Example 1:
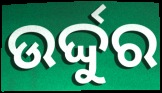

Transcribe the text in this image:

ଉର୍ଦ୍ଦୁର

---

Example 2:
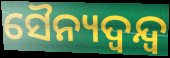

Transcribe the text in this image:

ସୈନ୍ୟଦ୍ୱନ୍ଦ୍ୱ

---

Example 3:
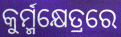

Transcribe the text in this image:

କୁର୍ମ୍ମକ୍ଷେତ୍ରରେ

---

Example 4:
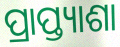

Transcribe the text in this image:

ପ୍ରାପ୍ତ୍ୟାଶା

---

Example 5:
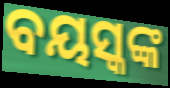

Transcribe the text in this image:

ବୟସ୍କଙ୍କ